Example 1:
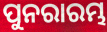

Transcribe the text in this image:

ପୁନରାରମ୍ଭ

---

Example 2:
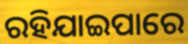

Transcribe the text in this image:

ରହିଯାଇପାରେ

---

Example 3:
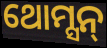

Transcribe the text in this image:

ଥୋମ୍ସନ୍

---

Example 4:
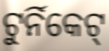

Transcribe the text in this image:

ଟୁର୍ନିକେଟ୍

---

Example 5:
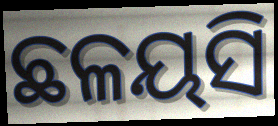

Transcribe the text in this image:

ଛଳୟସି